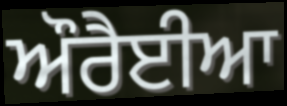
ਔਰੈਈਆ